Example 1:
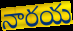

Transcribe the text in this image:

నారయ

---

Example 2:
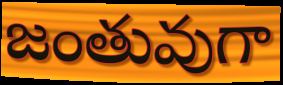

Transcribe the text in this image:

జంతువుగా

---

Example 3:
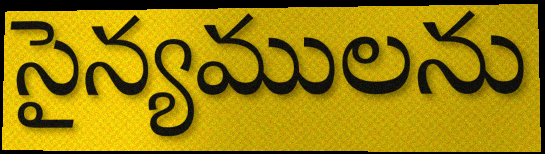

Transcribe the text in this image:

సైన్యములను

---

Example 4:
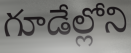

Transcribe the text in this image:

గూడేల్లోని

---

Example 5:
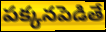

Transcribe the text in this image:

పక్కనపెడితే